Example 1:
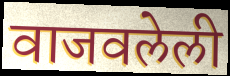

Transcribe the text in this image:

वाजवलेली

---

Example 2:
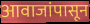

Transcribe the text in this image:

आवाजांपासून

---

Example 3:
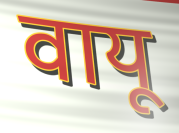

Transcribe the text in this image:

वायू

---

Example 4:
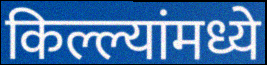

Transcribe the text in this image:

किल्ल्यांमध्ये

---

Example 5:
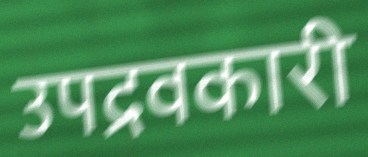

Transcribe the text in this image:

उपद्रवकारी